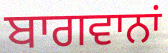
ਬਾਗਵਾਨਾਂ